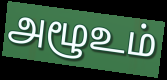
அழூஉம்